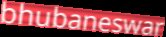
bhubaneswar